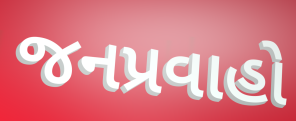
જનપ્રવાહો